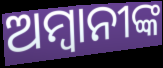
ଅମ୍ବାନୀଙ୍କ